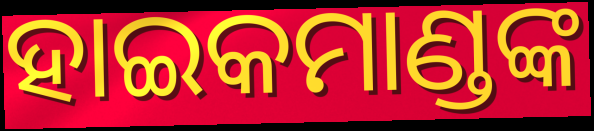
ହାଇକମାଣ୍ଡଙ୍କ